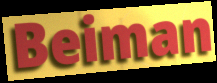
Beiman